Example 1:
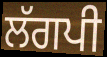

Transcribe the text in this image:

ਲੱਗਪੀ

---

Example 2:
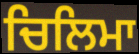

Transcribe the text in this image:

ਚਿਲਿਮਾ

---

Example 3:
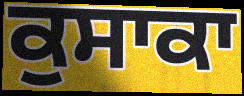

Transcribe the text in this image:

ਕੁਸਾਕਾ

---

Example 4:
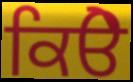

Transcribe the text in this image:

ਕਿੳੇ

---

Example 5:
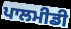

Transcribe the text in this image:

ਪਾਲਮੀਡੀ